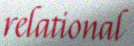
relational